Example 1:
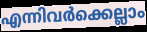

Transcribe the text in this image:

എന്നിവർക്കെല്ലാം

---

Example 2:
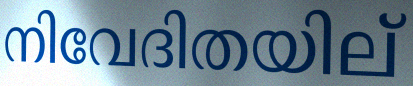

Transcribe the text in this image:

നിവേദിതയില്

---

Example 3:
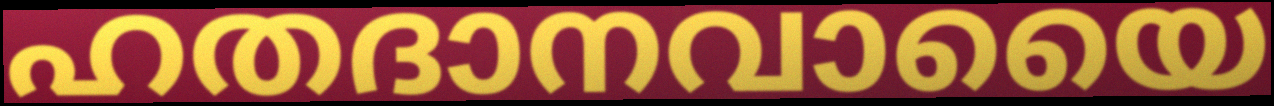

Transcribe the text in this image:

ഹതദാനവായൈ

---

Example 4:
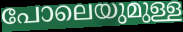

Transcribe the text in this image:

പോലെയുമുള്ള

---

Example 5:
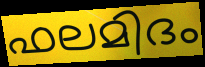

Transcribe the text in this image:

ഫലമിദം